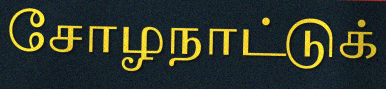
சோழநாட்டுக்